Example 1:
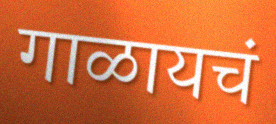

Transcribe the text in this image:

गाळायचं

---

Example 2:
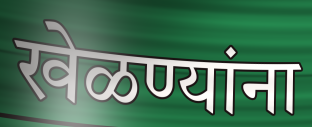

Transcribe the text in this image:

खेळण्यांना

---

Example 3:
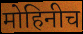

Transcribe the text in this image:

मोहिनीच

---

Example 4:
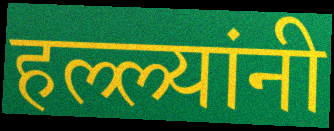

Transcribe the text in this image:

हल्ल्यांनी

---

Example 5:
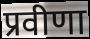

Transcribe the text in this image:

प्रवीणा